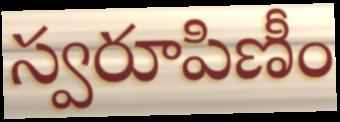
స్వరూపిణీం